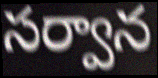
సర్వాన